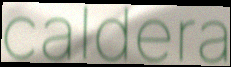
caldera